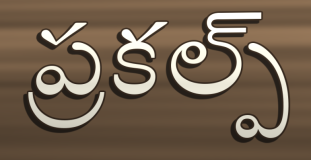
ప్రకల్ప్